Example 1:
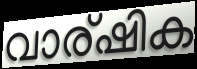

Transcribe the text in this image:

വാര്ഷിക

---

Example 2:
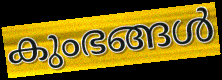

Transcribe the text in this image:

കുംഭങ്ങൾ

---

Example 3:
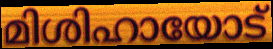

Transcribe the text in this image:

മിശിഹായോട്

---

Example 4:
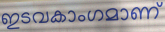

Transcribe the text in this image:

ഇടവകാംഗമാണ്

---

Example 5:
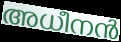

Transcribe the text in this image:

അധീനൻ